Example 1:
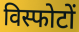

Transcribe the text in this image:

विस्फोटों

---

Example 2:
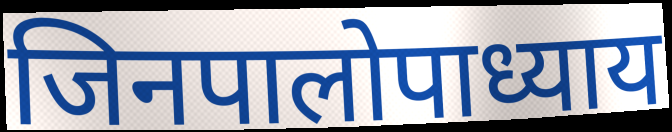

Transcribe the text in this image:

जिनपालोपाध्याय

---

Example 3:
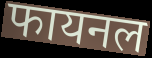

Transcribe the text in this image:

फायनल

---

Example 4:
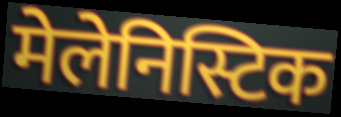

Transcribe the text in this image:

मेलेनिस्टिक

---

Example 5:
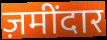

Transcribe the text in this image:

ज़मींदार